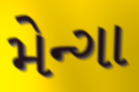
મેન્ગા